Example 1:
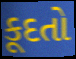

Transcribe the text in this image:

કૂદતો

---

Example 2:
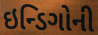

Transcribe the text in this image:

ઇન્ડિગોની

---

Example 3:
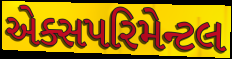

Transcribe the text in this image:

એક્સપરિમેન્ટલ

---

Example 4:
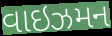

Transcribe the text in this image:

વાઇઝમન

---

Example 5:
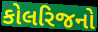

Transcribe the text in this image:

કોલરિજનો